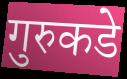
गुरुकडे